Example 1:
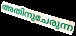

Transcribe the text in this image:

അതിനുചേരുന്ന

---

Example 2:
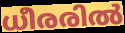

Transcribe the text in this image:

ധീരരിൽ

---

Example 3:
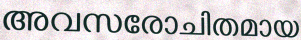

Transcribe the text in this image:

അവസരോചിതമായ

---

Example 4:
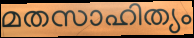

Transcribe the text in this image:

മതസാഹിത്യം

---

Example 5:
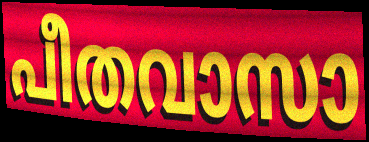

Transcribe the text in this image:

പീതവാസാ